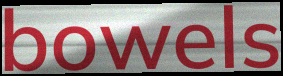
bowels